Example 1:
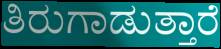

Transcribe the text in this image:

ತಿರುಗಾಡುತ್ತಾರೆ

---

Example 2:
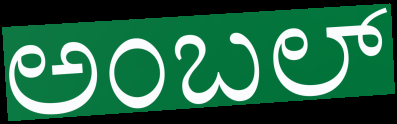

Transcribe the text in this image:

ಅಂಬಲ್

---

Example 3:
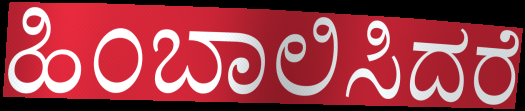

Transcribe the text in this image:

ಹಿಂಬಾಲಿಸಿದರೆ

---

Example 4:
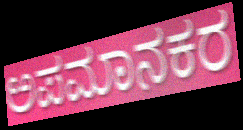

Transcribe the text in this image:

ಅಪಮಾನಕರ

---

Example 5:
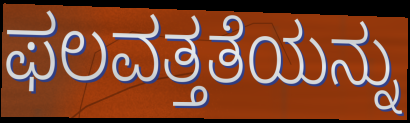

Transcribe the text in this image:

ಫಲವತ್ತತೆಯನ್ನು